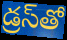
డ్రస్‌తో